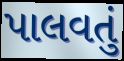
પાલવતું